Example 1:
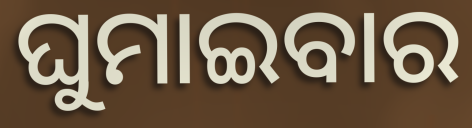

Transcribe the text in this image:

ଘୁମାଇବାର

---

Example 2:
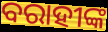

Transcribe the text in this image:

ବରାହୀଙ୍କ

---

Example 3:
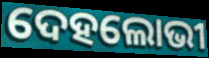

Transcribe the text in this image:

ଦେହଲୋଭୀ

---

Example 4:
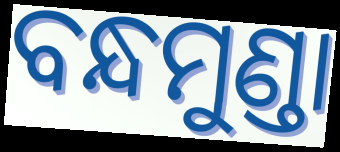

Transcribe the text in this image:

ବନ୍ଧମୁଣ୍ଡା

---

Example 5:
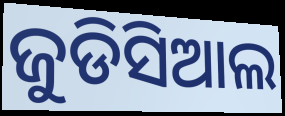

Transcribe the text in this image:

ଜୁଡିସିଆଲ